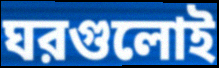
ঘরগুলোই